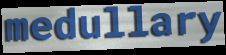
medullary